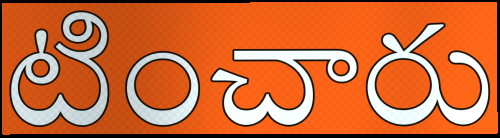
టించారు